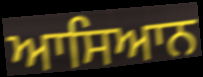
ਆਸਿਆਨ